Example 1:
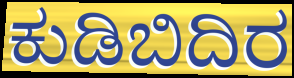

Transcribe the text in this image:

ಕುಡಿಬಿದಿರ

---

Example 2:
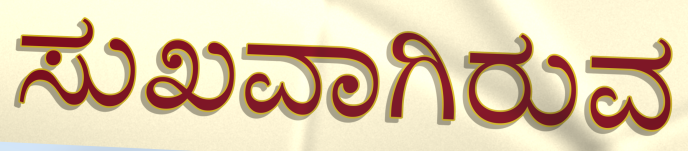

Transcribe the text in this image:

ಸುಖವಾಗಿರುವ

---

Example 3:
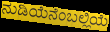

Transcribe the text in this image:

ನುಡಿಯೆನೆಂಬಲ್ಲಿಯೆ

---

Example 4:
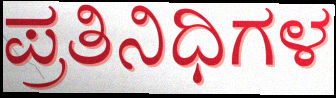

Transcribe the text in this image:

ಪ್ರತಿನಿಧಿಗಳ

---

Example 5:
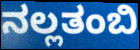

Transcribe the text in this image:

ನಲ್ಲತಂಬಿ